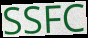
SSFC